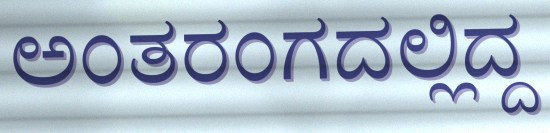
ಅಂತರಂಗದಲ್ಲಿದ್ದ